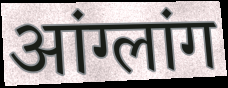
आंग्लांग